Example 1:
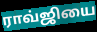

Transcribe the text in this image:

ராவ்ஜியை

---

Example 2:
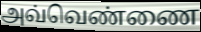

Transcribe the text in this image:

அவ்வெண்ணை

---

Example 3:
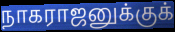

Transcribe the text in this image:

நாகராஜனுக்குக்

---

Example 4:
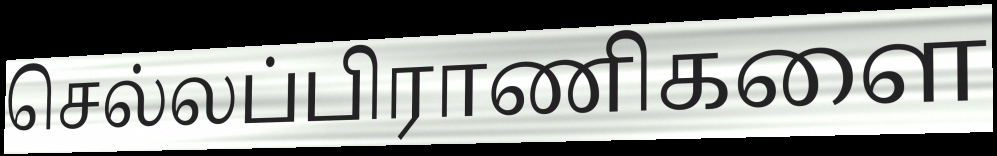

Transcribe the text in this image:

செல்லப்பிராணிகளை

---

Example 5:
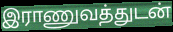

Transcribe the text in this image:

இராணுவத்துடன்